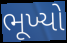
ભૂખ્યો